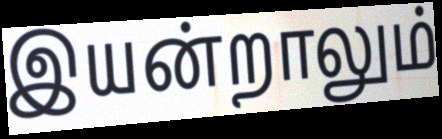
இயன்றாலும்